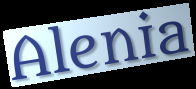
Alenia